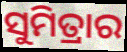
ସୁମିତ୍ରାର